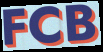
FCB